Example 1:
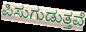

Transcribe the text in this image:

ಪಿಸುಗುಡುತ್ತವೆ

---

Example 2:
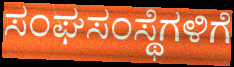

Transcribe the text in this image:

ಸಂಘಸಂಸ್ಥೆಗಳಿಗೆ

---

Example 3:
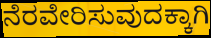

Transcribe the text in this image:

ನೆರವೇರಿಸುವುದಕ್ಕಾಗಿ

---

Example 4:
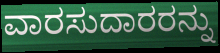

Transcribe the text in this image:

ವಾರಸುದಾರರನ್ನು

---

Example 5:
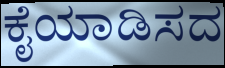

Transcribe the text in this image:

ಕೈಯಾಡಿಸದ